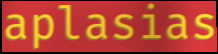
aplasias